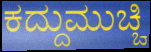
ಕದ್ದುಮುಚ್ಚಿ